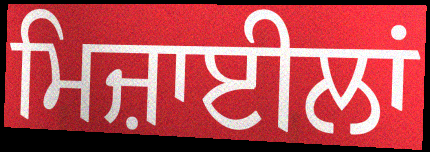
ਮਿਜ਼ਾਈਲਾਂ